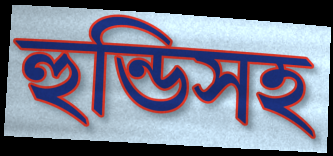
হুন্ডিসহ